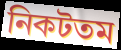
নিকটতম